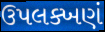
ઉપલક્ખણં